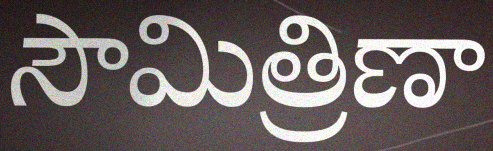
సౌమిత్రిణా